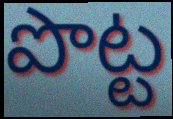
పొట్ట